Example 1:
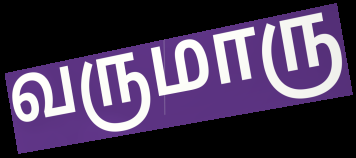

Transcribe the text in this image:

வருமாரு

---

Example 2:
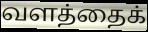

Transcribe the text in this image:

வளத்தைக்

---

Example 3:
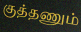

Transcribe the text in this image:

குத்தணும்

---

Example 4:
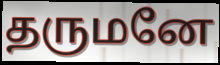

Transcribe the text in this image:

தருமனே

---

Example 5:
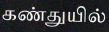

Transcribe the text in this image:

கண்துயில்